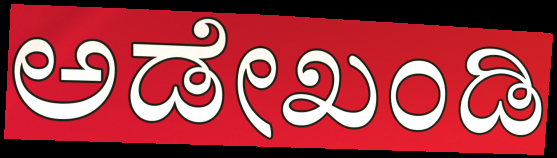
ಅಡೇಖಂಡಿ